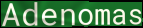
Adenomas